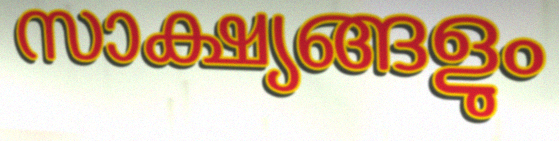
സാക്ഷ്യങ്ങളും